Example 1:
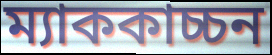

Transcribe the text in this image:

ম্যাককাচ্চন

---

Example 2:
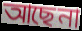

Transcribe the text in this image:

আছেনা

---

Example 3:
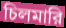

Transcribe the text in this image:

চিলমারি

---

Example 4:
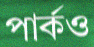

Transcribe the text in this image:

পার্কও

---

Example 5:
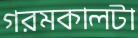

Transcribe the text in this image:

গরমকালটা